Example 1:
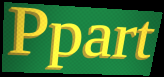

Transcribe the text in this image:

Ppart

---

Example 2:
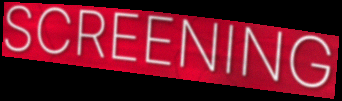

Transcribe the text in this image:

SCREENING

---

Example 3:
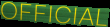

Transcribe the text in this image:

OFFICIAL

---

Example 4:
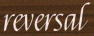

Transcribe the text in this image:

reversal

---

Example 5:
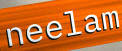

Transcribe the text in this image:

neelam